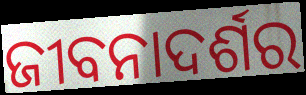
ଜୀବନାଦର୍ଶର